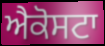
ਐਕੋਸਟਾ